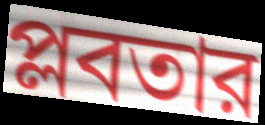
প্লবতার